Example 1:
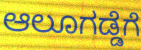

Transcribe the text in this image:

ಆಲೂಗಡ್ಡೆಗೆ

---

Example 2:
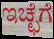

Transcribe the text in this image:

ಇಚ್ಛೆಗೆ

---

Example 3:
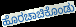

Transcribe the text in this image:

ಹೊರಚಾಚಿಕೊಂಡು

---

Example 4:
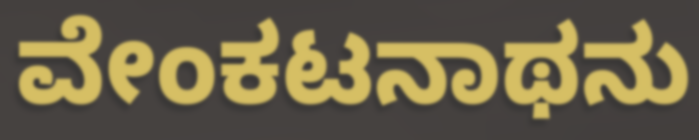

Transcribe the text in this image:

ವೇಂಕಟನಾಥನು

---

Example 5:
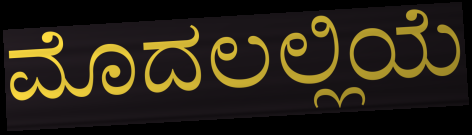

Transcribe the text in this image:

ಮೊದಲಲ್ಲಿಯೆ